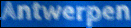
Antwerpen